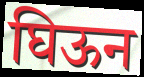
घिऊन